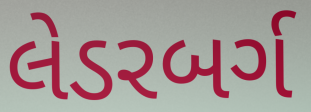
લેડરબર્ગ